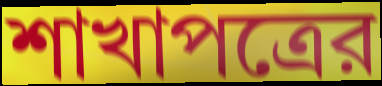
শাখাপত্রের